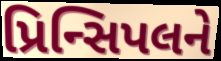
પ્રિન્સિપલને